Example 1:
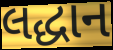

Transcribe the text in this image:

લદ્ધાન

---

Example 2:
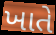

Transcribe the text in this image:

ખાતે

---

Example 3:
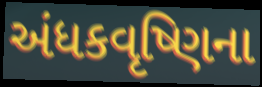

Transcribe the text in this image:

અંધકવૃષ્ણિના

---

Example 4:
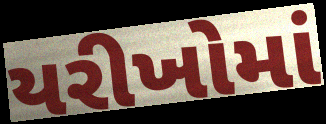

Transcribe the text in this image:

યરીખોમાં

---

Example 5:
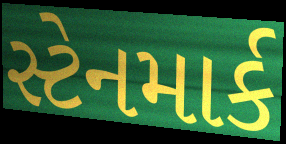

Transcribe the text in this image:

સ્ટેનમાર્ક